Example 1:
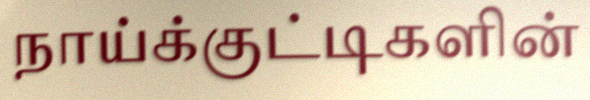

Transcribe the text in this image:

நாய்க்குட்டிகளின்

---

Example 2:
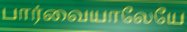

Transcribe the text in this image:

பார்வையாலேயே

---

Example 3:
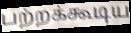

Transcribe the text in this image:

பற்றக்கூடிய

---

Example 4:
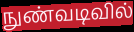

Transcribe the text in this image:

நுண்வடிவில்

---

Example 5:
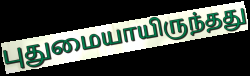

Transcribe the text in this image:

புதுமையாயிருந்தது